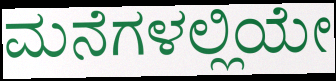
ಮನೆಗಳಲ್ಲಿಯೇ